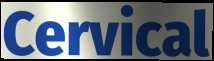
Cervical